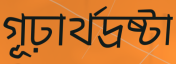
গূঢ়ার্থদ্রষ্টা